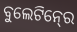
ବୁଲେଟିନ୍‍ରେ